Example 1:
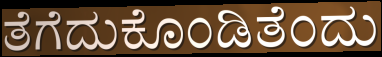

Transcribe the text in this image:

ತೆಗೆದುಕೊಂಡಿತೆಂದು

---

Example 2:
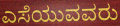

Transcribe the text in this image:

ಎಸೆಯುವವರು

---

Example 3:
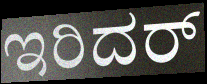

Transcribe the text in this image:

ಇರಿದರ್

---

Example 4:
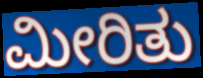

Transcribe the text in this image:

ಮೀರಿತು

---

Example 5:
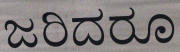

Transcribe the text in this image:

ಜರಿದರೂ